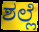
ಶಲ್ಲೆ